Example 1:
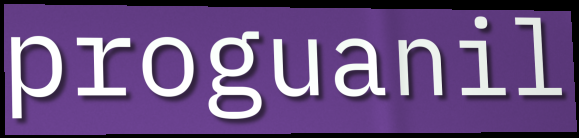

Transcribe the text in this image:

proguanil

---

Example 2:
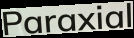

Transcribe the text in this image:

Paraxial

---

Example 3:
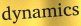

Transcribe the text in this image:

dynamics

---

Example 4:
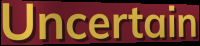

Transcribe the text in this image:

Uncertain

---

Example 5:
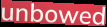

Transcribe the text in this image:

unbowed